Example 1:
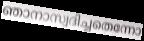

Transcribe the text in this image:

ഞാനാസ്വദിച്ചതെന്നോ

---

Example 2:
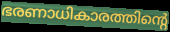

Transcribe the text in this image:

ഭരണാധികാരത്തിന്റെ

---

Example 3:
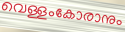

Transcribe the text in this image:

വെള്ളംകോരാനും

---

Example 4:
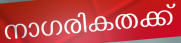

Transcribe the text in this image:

നാഗരികതക്ക്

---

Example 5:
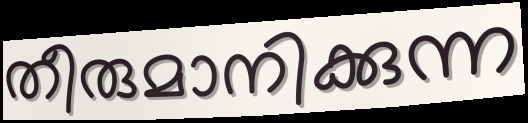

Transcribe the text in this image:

തീരുമാനിക്കുന്ന